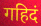
गहिदं